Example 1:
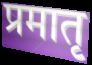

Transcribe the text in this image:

प्रमातृ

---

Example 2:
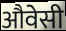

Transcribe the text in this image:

औवेसी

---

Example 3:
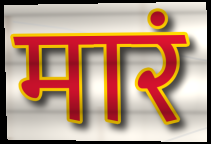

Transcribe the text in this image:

मारं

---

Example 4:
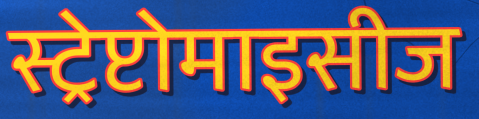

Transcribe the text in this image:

स्ट्रेप्टोमाइसीज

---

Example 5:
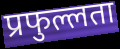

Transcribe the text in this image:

प्रफुल्लता